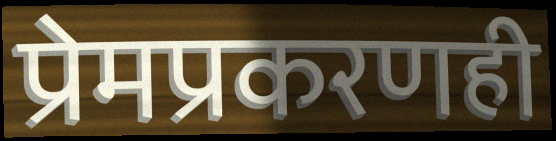
प्रेमप्रकरणही